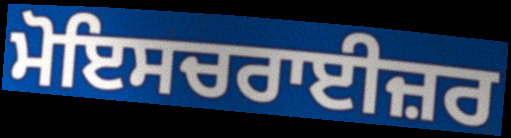
ਮੋਇਸਚਰਾਈਜ਼ਰ